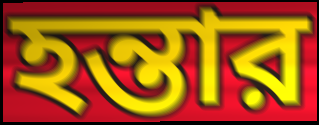
হন্তার